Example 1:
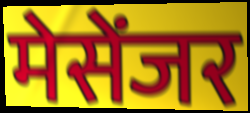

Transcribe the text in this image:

मेसेंजर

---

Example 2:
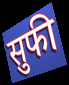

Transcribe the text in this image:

सुफी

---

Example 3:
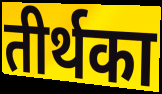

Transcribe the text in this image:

तीर्थका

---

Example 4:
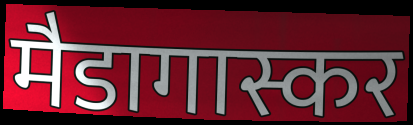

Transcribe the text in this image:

मैडागास्कर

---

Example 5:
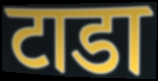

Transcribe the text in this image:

टाडा